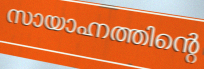
സായാഹ്നത്തിന്റെ